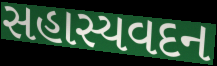
સહાસ્યવદન